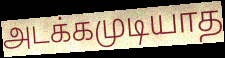
அடக்கமுடியாத